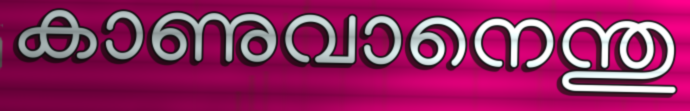
കാണുവാനെന്തു